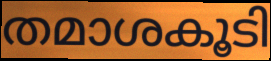
തമാശകൂടി